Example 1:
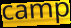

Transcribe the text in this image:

camp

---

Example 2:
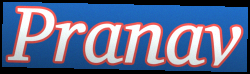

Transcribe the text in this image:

Pranav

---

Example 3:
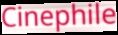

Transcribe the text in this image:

Cinephile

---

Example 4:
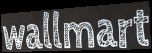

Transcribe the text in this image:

wallmart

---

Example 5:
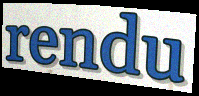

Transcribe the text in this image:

rendu